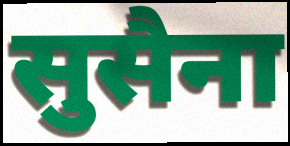
सुसैना